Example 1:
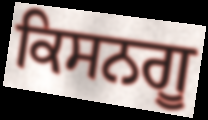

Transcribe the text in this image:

ਕਿਸਨਗੂ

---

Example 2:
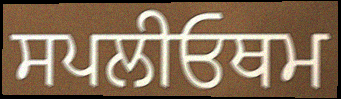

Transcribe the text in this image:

ਸਪਲੀਓਥਮ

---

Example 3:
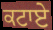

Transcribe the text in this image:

ਕਟਾਏ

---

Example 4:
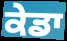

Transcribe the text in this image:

ਕੇਡਾ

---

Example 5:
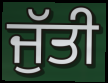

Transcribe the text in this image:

ਜੁੱਤੀ